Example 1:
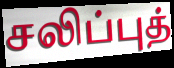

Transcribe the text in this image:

சலிப்புத்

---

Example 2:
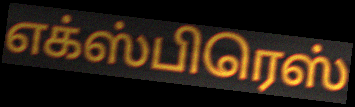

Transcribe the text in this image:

எக்ஸ்பிரெஸ்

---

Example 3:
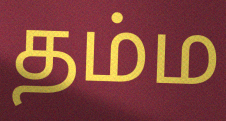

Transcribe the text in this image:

தம்ம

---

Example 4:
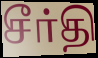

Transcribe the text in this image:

சீர்தி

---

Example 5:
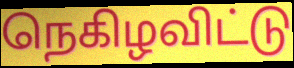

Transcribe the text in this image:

நெகிழவிட்டு